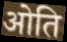
ओति